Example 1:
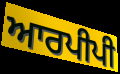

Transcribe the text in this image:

ਆਰਪੀਪੀ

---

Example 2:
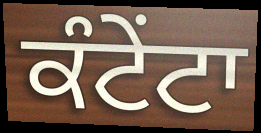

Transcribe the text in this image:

ਕੰਟੇਂਟਾ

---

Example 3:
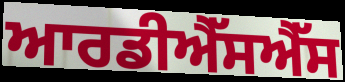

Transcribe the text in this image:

ਆਰਡੀਐੱਸਐੱਸ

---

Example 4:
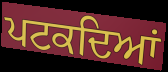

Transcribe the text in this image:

ਪਟਕਦਿਆਂ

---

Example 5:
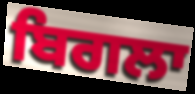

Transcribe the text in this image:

ਬਿਗਲਾ